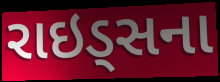
રાઇડ્સના